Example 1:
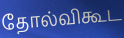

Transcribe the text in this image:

தோல்விகூட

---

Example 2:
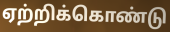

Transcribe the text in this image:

ஏற்றிக்கொண்டு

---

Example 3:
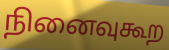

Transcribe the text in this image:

நினைவுகூற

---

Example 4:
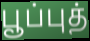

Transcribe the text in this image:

பூப்புத்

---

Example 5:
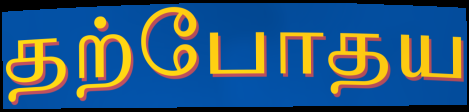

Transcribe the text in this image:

தற்போதய